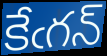
కేఁగన్